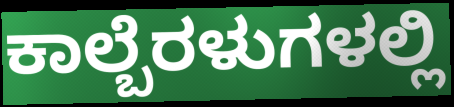
ಕಾಲ್ಬೆರಳುಗಳಲ್ಲಿ